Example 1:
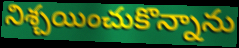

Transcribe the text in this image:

నిశ్చయించుకొన్నాను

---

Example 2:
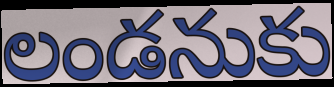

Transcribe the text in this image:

లండనుకు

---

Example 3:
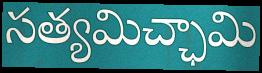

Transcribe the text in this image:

సత్యమిచ్ఛామి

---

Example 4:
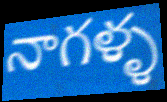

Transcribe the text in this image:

నాగళ్ళ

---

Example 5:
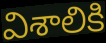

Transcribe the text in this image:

విశాలికి